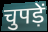
चुपड़ें